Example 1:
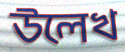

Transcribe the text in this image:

উলেখ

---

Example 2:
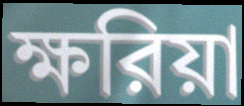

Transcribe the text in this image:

ক্ষরিয়া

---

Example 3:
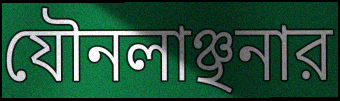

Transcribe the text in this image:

যৌনলাঞ্ছনার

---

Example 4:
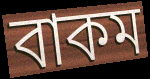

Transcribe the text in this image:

বাকম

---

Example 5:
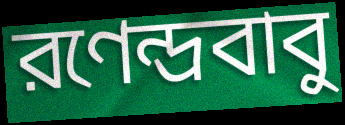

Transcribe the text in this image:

রণেন্দ্রবাবু